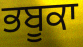
ਭਬੂਕਾ